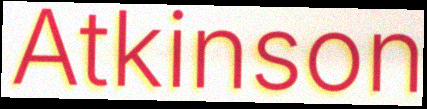
Atkinson